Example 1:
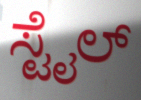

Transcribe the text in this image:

ಸ್ಟೈಲ್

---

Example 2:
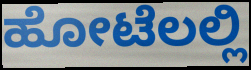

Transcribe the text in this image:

ಹೋಟೆಲಲ್ಲಿ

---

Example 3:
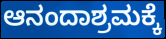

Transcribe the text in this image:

ಆನಂದಾಶ್ರಮಕ್ಕೆ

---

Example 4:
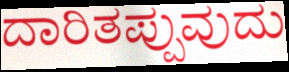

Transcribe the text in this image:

ದಾರಿತಪ್ಪುವುದು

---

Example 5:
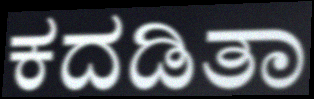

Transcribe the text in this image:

ಕದಡಿತಾ